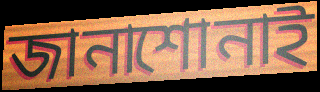
জানাশোনাই